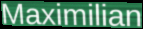
Maximilian